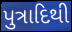
પુત્રાદિથી